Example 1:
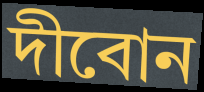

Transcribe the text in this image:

দীবোন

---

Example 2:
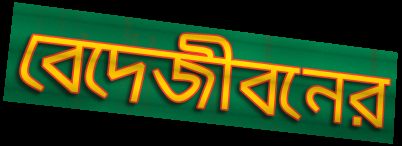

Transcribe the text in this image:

বেদেজীবনের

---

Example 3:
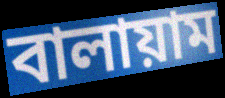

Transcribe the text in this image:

বালায়াম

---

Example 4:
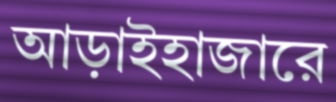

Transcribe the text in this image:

আড়াইহাজারে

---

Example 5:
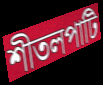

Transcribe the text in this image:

শীতলপাটি